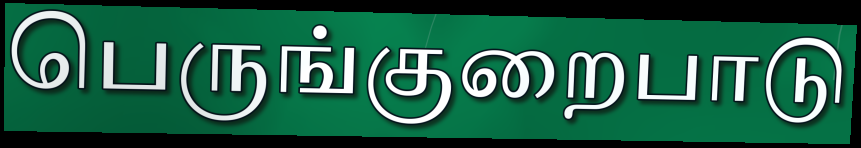
பெருங்குறைபாடு